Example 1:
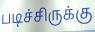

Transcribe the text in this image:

படிச்சிருக்கு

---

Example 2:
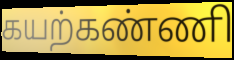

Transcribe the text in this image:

கயற்கண்ணி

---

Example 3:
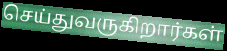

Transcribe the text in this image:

செய்துவருகிறார்கள்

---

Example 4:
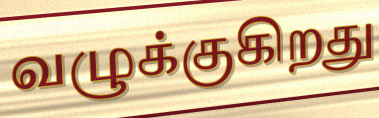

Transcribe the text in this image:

வழுக்குகிறது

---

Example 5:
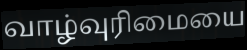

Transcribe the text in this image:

வாழ்வுரிமையை